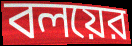
বলয়ের